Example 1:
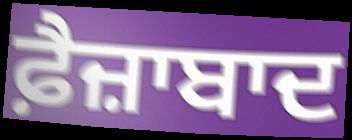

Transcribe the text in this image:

ਫ਼ੈਜ਼ਾਬਾਦ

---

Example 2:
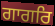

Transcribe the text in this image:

ਗਾਗਰਿ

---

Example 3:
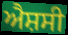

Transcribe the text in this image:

ਐਸ਼ਸੀ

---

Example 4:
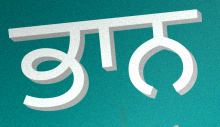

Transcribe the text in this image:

ਭਾਨ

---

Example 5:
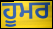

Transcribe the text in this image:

ਹੂਮਰ